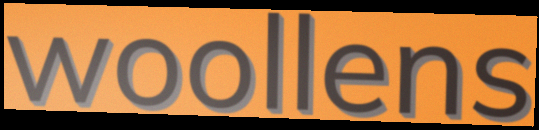
woollens